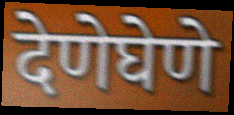
देणेघेणे